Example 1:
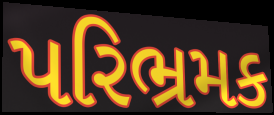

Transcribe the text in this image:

પરિભ્રમક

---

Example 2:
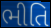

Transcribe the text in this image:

ભીતિ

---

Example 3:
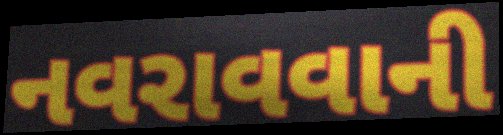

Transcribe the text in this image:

નવરાવવાની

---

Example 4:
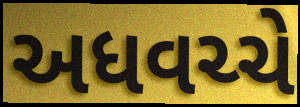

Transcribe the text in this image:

અધવચ્ચે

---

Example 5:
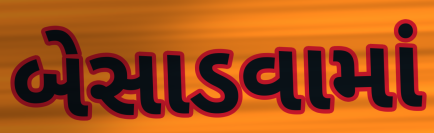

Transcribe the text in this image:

બેસાડવામાં